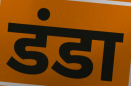
डंडा